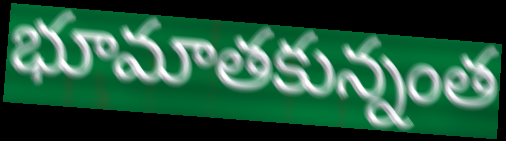
భూమాతకున్నంత